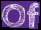
Of